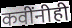
कवींनीही